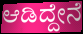
ಆಡಿದ್ದೇನೆ